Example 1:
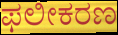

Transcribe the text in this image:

ಫಲೀಕರಣ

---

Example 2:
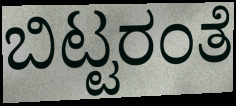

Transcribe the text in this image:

ಬಿಟ್ಟರಂತೆ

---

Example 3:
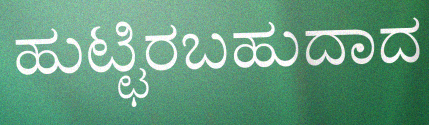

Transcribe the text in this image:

ಹುಟ್ಟಿರಬಹುದಾದ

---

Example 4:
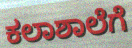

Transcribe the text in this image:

ಕಲಾಶಾಲೆಗೆ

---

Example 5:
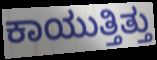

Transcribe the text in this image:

ಕಾಯುತ್ತಿತ್ತು